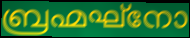
ബ്രഹ്മഘ്നോ